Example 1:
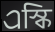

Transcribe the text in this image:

এস্কি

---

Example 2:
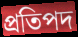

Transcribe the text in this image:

প্রতিপদ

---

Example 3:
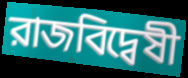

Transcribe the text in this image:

রাজবিদ্বেষী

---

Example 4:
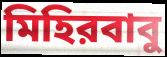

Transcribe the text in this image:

মিহিরবাবু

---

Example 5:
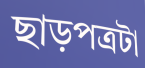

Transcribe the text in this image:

ছাড়পত্রটা